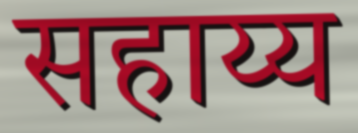
सहाय्य